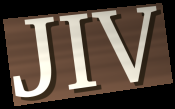
JIV